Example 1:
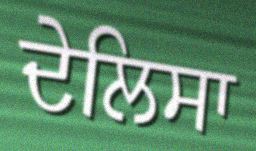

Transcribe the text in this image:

ਦੇਲਿਸਾ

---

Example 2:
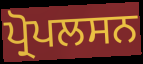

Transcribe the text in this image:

ਪ੍ਰੋਪਲਸਨ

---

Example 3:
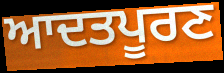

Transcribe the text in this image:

ਆਦਤਪੂਰਣ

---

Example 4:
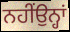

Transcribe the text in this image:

ਨਹੀਂਉਨ੍ਹਾਂ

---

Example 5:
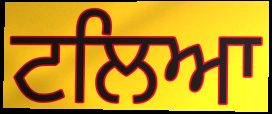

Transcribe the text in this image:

ਟਲਿਆ